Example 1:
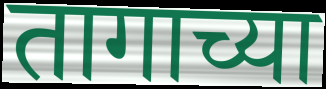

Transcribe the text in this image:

तागाच्या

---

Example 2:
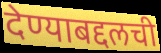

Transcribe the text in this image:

देण्याबद्दलची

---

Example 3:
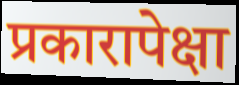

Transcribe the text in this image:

प्रकारापेक्षा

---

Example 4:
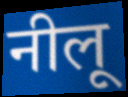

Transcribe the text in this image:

नीलू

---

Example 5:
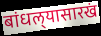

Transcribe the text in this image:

बांधल्यासारखं